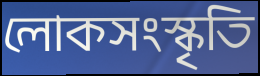
লোকসংস্কৃতি